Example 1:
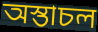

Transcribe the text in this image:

অস্তাচল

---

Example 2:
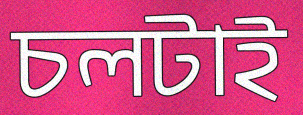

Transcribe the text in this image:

চলটাই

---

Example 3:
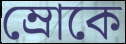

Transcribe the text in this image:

ম্রোকে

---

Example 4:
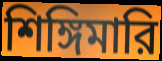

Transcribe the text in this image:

শিঙ্গিমারি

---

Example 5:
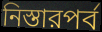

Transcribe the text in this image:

নিস্তারপর্ব